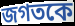
জগতকে